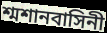
শ্মশানবাসিনী